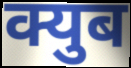
क्युब